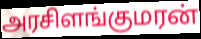
அரசிளங்குமரன்